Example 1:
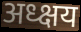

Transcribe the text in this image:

अध्क्षय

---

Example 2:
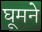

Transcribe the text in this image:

घूमने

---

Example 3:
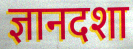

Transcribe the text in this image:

ज्ञानदशा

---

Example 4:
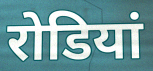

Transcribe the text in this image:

रोडियां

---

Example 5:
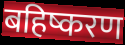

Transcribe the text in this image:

बहिष्करण